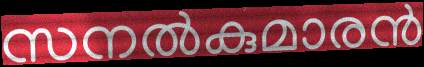
സനൽകുമാരൻ